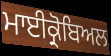
ਮਾਈਕ੍ਰੋਬਿਅਲ